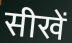
सीखें